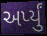
અર્પ્યું